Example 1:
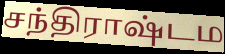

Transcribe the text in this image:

சந்திராஷ்டம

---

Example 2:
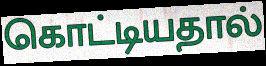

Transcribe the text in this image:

கொட்டியதால்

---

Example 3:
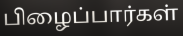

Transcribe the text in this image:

பிழைப்பார்கள்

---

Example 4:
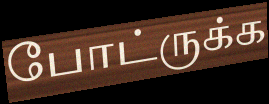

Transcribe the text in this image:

போட்ருக்க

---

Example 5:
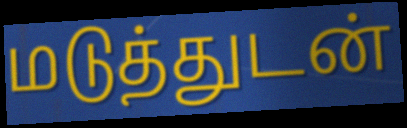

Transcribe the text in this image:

மடுத்துடன்